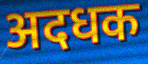
अदधक